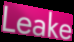
Leake